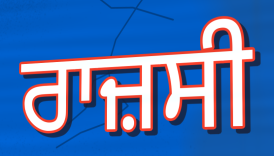
ਰਾਜ਼ਸੀ